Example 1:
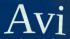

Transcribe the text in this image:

Avi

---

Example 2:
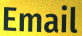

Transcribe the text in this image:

Email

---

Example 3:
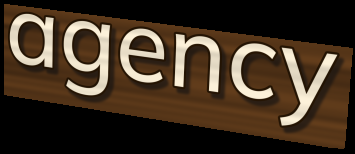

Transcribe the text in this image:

agency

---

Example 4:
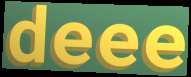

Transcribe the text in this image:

deee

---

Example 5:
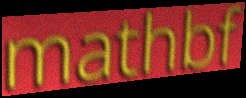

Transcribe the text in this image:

mathbf